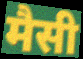
मैसी